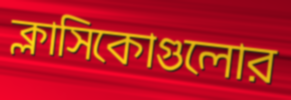
ক্লাসিকোগুলোর